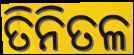
ତିନିତଳ